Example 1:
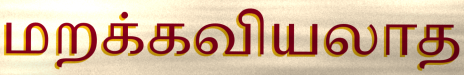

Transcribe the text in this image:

மறக்கவியலாத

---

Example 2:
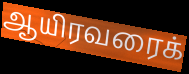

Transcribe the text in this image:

ஆயிரவரைக்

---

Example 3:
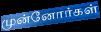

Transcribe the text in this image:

முன்னோர்கள்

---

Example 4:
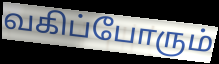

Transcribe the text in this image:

வகிப்போரும்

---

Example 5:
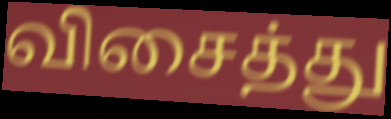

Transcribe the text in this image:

விசைத்து